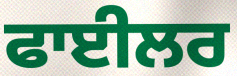
ਫਾਈਲਰ